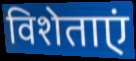
विशेताएं